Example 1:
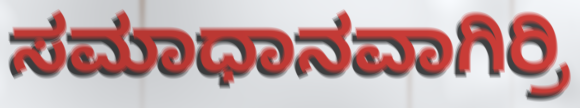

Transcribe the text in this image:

ಸಮಾಧಾನವಾಗಿರ್ರಿ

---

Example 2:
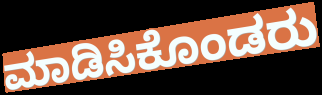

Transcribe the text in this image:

ಮಾಡಿಸಿಕೊಂಡರು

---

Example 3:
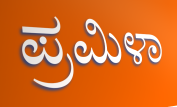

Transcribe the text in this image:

ಪ್ರಮಿಳಾ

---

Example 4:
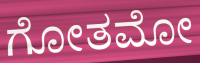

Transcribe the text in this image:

ಗೋತಮೋ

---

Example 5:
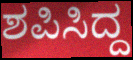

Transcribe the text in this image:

ಶಪಿಸಿದ್ದ